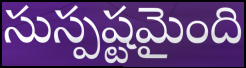
సుస్పష్టమైంది